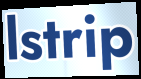
lstrip